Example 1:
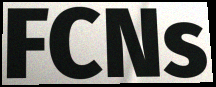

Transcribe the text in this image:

FCNs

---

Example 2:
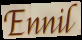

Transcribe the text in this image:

Ennil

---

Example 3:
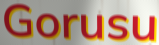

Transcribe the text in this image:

Gorusu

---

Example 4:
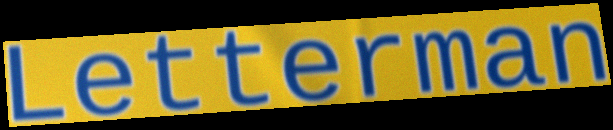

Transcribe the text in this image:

Letterman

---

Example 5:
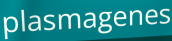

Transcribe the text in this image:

plasmagenes